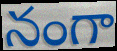
నంగా